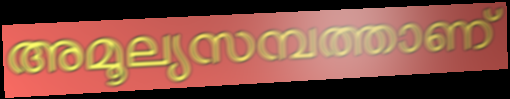
അമൂല്യസമ്പത്താണ്